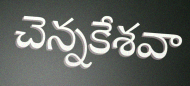
చెన్నకేశవా